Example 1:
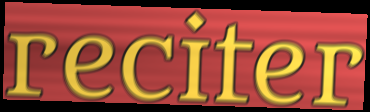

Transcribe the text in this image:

reciter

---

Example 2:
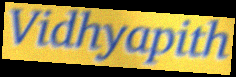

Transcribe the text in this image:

Vidhyapith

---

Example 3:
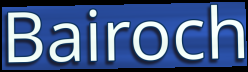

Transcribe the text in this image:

Bairoch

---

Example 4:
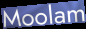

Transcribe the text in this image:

Moolam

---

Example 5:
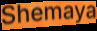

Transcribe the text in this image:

Shemaya